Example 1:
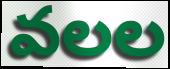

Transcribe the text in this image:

వలల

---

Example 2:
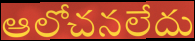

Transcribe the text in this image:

ఆలోచనలేదు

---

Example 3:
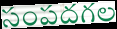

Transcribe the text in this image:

సంపదగల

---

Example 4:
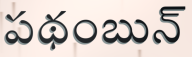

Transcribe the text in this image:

పథంబున్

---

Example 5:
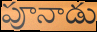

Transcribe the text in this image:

పూనాడు